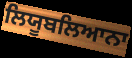
ਲਿਯੂਬਲਿਆਨਾ